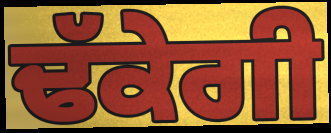
ਢੱਕੇਗੀ